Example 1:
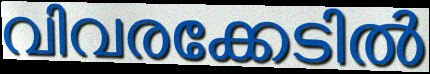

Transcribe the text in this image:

വിവരക്കേടിൽ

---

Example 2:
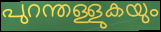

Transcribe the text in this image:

പുറന്തള്ളുകയും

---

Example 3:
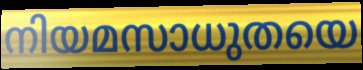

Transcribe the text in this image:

നിയമസാധുതയെ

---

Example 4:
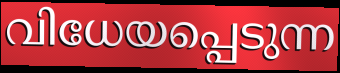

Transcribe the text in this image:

വിധേയപ്പെടുന്ന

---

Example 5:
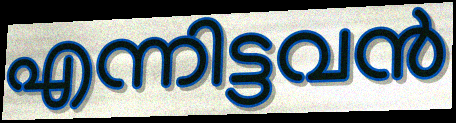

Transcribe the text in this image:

എന്നിട്ടവൻ